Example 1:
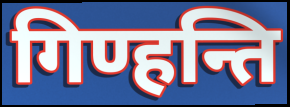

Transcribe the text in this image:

गिण्हन्ति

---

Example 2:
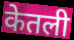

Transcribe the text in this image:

केतली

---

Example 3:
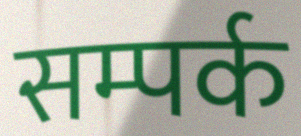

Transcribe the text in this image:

सम्‍पर्क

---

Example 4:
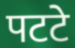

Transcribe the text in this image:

पटटे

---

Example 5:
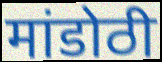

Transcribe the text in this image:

मांडोठी